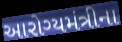
આરોગ્યમંત્રીના